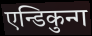
एन्डिकुन्ग